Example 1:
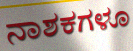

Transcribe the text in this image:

ನಾಶಕಗಳೂ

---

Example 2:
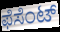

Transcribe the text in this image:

ಫೆಸೆಂಟ್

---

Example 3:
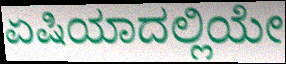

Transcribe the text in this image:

ಏಷಿಯಾದಲ್ಲಿಯೇ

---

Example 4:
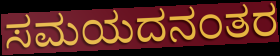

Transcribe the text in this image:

ಸಮಯದನಂತರ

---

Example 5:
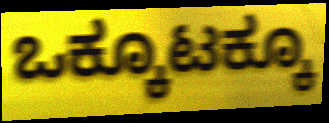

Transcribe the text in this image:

ಒಕ್ಕೂಟಕ್ಕೂ